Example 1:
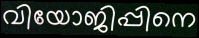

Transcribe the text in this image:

വിയോജിപ്പിനെ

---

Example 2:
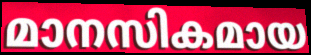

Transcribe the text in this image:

മാനസികമായ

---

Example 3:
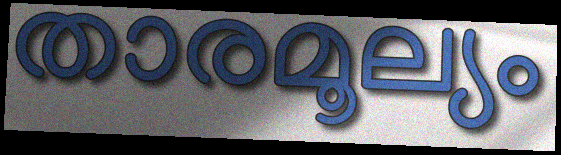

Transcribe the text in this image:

താരമൂല്യം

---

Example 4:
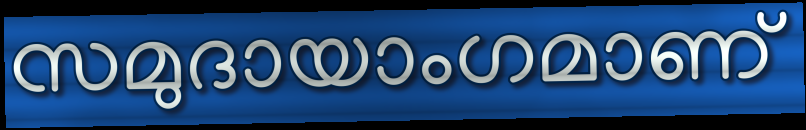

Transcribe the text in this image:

സമുദായാംഗമാണ്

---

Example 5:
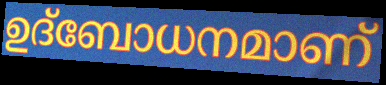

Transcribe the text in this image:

ഉദ്ബോധനമാണ്